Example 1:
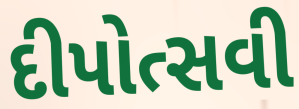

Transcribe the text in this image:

દીપોત્સવી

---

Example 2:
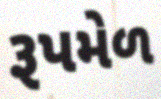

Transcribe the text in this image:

રૂપમેળ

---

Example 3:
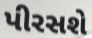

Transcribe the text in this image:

પીરસશે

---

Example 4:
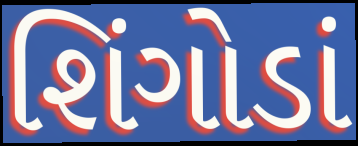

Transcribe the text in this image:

શિંગોડાં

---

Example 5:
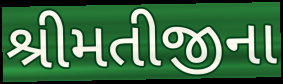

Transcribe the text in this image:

શ્રીમતીજીના